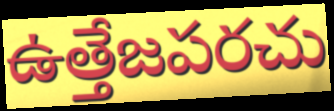
ఉత్తేజపరచు